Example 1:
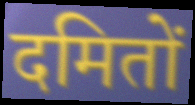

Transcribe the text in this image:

दमितों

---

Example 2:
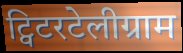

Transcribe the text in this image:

ट्विटरटेलीग्राम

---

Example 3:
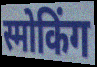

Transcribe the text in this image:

स्मोकिंग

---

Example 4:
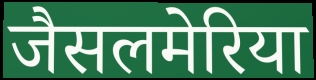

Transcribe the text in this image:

जैसलमेरिया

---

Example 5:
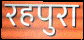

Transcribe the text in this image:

रहपुरा